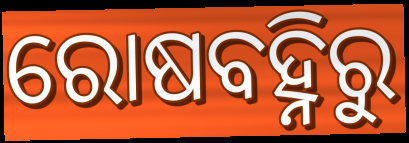
ରୋଷବହ୍ନିରୁ